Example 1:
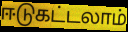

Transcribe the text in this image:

ஈடுகட்டலாம்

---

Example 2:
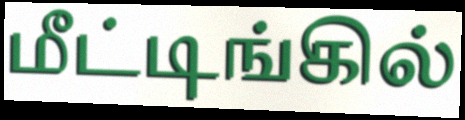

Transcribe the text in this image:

மீட்டிங்கில்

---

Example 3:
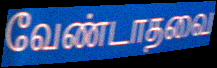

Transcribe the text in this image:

வேண்டாதவை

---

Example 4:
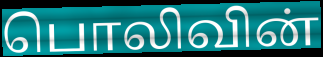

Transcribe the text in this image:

பொலிவின்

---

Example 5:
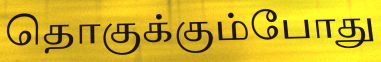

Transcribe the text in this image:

தொகுக்கும்போது